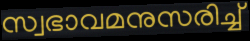
സ്വഭാവമനുസരിച്ച്